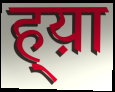
ह्य़ा